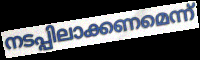
നടപ്പിലാക്കണമെന്ന്